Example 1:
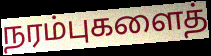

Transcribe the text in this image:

நரம்புகளைத்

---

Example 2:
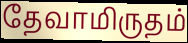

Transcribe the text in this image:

தேவாமிருதம்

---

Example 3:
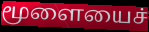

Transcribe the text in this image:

மூளையைச்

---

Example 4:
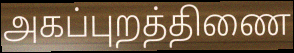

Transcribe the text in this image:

அகப்புறத்திணை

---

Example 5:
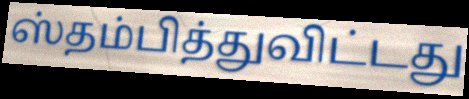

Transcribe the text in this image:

ஸ்தம்பித்துவிட்டது